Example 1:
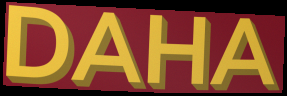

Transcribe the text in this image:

DAHA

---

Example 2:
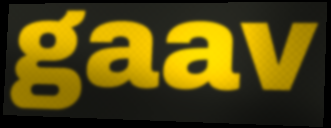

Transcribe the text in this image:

gaav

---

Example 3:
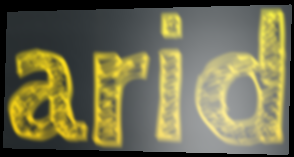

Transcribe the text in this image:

arid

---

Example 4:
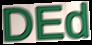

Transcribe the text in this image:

DEd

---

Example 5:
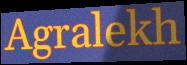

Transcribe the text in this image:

Agralekh